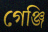
গেঞ্জি